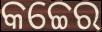
କଚ୍ଚେର